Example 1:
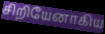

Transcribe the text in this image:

சிறியேனாகிய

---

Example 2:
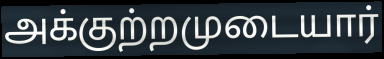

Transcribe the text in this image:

அக்குற்றமுடையார்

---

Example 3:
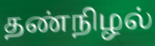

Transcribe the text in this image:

தண்நிழல்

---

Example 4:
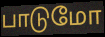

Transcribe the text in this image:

பாடுமோ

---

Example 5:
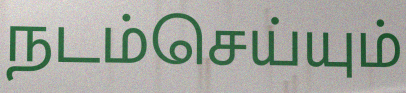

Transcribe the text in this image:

நடம்செய்யும்